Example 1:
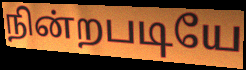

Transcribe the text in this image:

நின்றபடியே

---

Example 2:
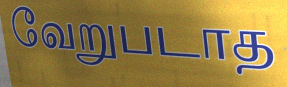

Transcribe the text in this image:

வேறுபடாத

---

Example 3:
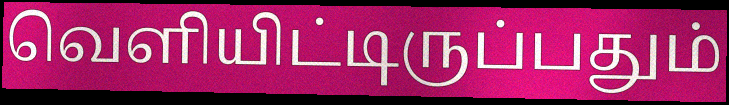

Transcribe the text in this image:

வெளியிட்டிருப்பதும்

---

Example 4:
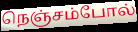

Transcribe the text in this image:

நெஞ்சம்போல்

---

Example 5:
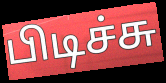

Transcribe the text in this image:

பிடிச்சு